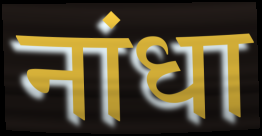
नांधा